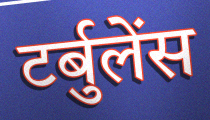
टर्बुलेंस